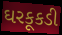
ઘરકૂકડી